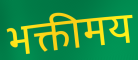
भक्तीमय